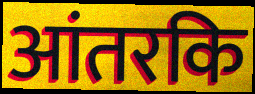
आंतरकि